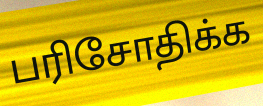
பரிசோதிக்க